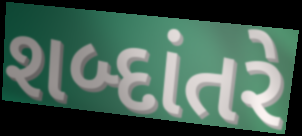
શબ્દાંતરે